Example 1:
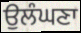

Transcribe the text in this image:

ਉਲੰਘਣਾ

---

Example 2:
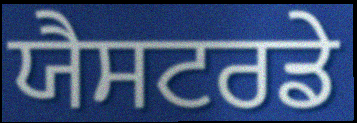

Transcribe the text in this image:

ਯੈਸਟਰਡੇ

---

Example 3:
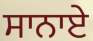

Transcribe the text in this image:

ਸਾਨਾਏ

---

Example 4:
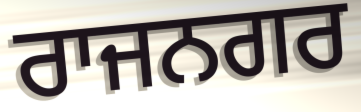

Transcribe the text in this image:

ਰਾਜਨਗਰ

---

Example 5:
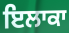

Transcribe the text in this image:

ਇਲਾਕਾ